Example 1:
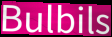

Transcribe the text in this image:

Bulbils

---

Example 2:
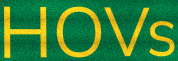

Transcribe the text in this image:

HOVs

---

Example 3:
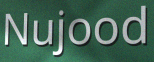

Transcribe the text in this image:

Nujood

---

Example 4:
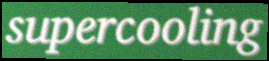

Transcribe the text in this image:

supercooling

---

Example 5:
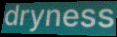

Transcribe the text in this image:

dryness